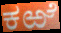
ಕಱೆ